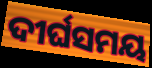
ଦୀର୍ଘସମୟ